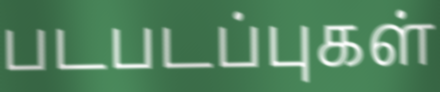
படபடப்புகள்